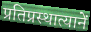
प्रतिप्रस्थात्यानें